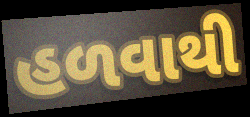
હળવાથી